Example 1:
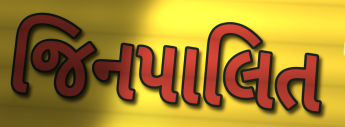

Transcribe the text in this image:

જિનપાલિત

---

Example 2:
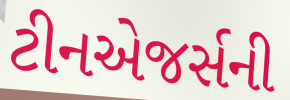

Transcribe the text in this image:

ટીનએજર્સની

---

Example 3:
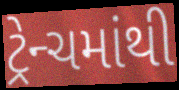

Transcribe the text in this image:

ટ્રેન્ચમાંથી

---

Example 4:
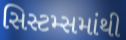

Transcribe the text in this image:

સિસ્ટમ્સમાંથી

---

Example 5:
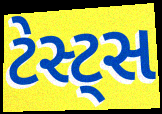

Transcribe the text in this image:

ટેસ્ટ્સ